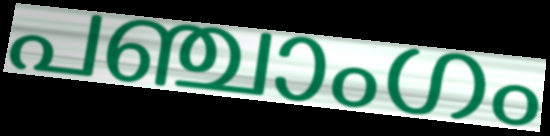
പഞ്ചാംഗം